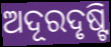
ଅଦୂରଦୃଷ୍ଟି